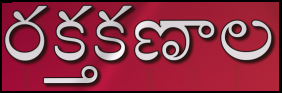
రక్తకణాల